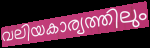
വലിയകാര്യത്തിലും